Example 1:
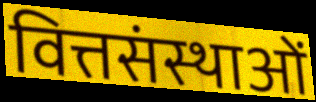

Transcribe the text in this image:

वित्तसंस्थाओं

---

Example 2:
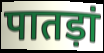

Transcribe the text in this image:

पातड़ां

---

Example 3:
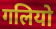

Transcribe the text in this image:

गलियो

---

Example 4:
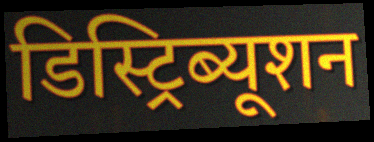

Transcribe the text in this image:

डिस्ट्रिब्यूशन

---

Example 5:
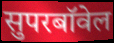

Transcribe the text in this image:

सुपरबॉवेल